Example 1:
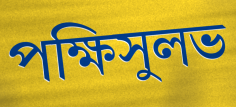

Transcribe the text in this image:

পক্ষিসুলভ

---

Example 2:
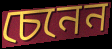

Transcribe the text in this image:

চেনেন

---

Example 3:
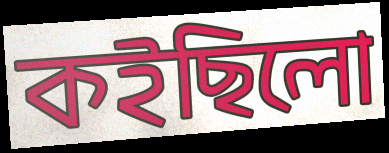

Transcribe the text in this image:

কইছিলো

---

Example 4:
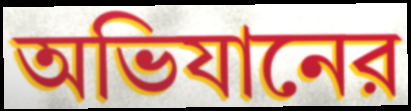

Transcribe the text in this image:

অভিযানের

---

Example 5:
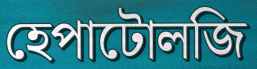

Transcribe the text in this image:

হেপাটোলজি